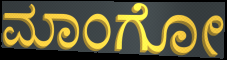
ಮಾಂಗೋ